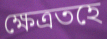
ক্ষেত্ৰতহে